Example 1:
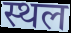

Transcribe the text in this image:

स्‍थल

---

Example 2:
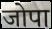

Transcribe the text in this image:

जोपा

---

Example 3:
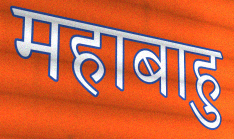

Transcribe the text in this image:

महाबाहु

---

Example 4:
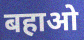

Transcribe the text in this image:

बहाओ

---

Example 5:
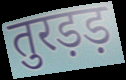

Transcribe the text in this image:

तुरड़ड़